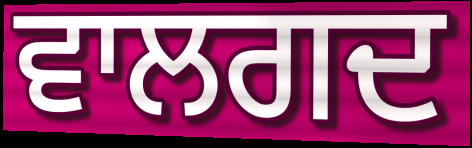
ਵਾਲਗਦ